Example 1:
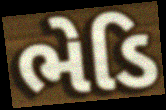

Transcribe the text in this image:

ભેડિ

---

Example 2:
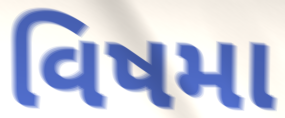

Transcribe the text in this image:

વિષમા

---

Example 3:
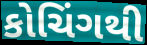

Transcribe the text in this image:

કોચિંગથી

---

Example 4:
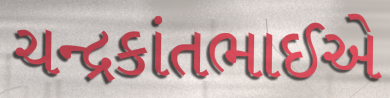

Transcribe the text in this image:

ચન્દ્રકાંતભાઈએ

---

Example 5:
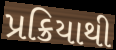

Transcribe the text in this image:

પ્રક્રિયાથી